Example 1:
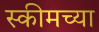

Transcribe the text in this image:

स्कीमच्या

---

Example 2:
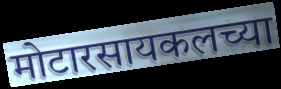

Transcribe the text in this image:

मोटारसायकलच्या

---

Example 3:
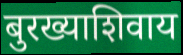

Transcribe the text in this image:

बुरख्याशिवाय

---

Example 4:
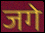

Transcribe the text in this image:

जगे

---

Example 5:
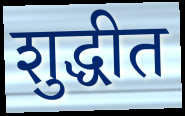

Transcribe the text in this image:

शुद्धीत